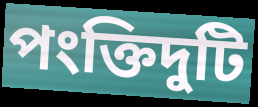
পংক্তিদুটি